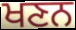
ਖਣਨ